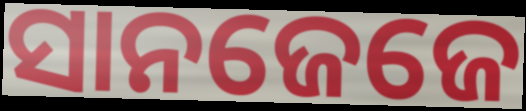
ସାନଜେଜେ